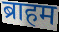
ब्राहम